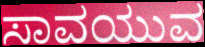
ಸಾವಯುವ